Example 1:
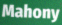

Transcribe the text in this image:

Mahony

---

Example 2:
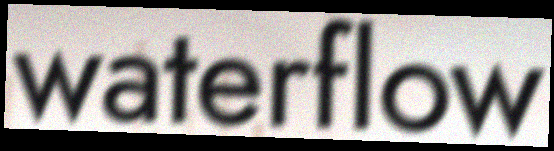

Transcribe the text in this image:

waterflow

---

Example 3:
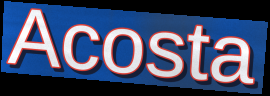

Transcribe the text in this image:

Acosta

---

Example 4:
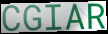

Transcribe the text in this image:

CGIAR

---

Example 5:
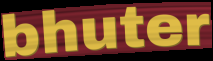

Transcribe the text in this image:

bhuter